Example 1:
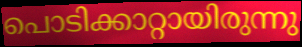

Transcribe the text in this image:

പൊടിക്കാറ്റായിരുന്നു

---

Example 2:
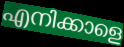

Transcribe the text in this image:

എനിക്കാളെ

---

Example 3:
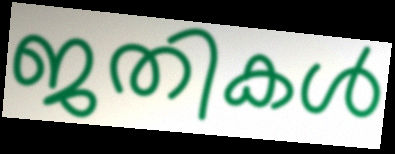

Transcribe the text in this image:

ജതികൾ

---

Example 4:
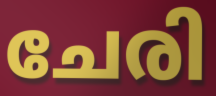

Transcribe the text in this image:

ചേരി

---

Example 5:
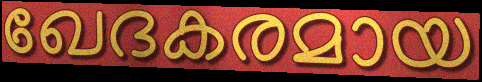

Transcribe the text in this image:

ഖേദകരമായ